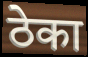
ठेका